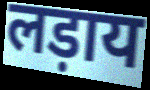
लड़ाय